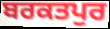
ਬਰਕਤਪੁਰ